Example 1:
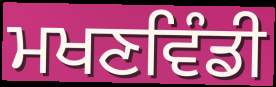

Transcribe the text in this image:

ਮਖਣਵਿੰਡੀ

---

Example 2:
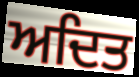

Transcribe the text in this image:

ਅਦਿਤ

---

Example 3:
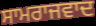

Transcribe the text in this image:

ਸਾਮਰਾਜਵਾਦ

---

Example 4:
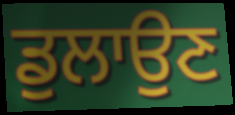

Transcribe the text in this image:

ਡੁਲਾਉਣ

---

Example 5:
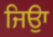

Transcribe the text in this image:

ਜਿਉਾ